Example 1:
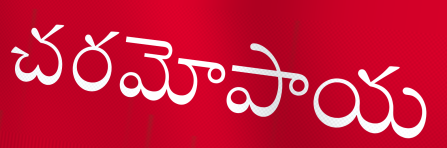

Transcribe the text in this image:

చరమోపాయ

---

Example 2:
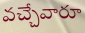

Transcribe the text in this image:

వచ్చేవారూ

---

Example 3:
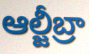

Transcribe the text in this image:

ఆల్జీబ్రా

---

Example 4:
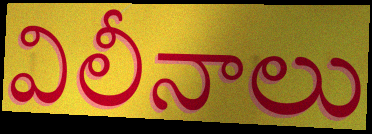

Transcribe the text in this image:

విలీనాలు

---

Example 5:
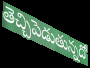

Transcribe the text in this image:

తెచ్చిపెడుతున్నదో